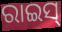
ରାଇସ୍